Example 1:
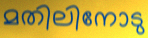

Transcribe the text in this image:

മതിലിനോടു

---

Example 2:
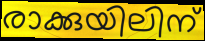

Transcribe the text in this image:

രാക്കുയിലിന്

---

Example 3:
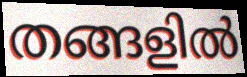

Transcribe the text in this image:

തങ്ങളിൽ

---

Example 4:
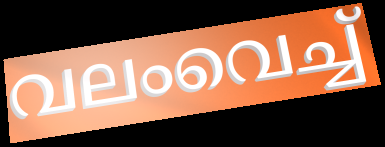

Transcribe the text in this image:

വലംവെച്ച്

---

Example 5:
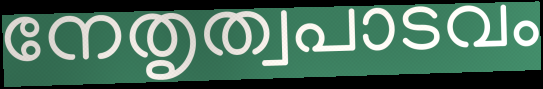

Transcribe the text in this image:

നേതൃത്വപാടവം